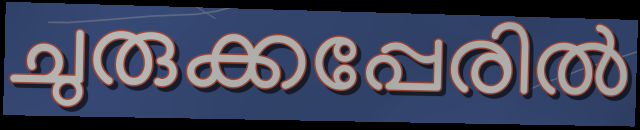
ചുരുക്കപ്പേരിൽ